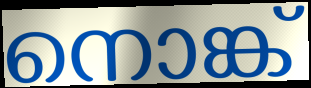
നൊങ്ക്